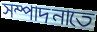
সম্পাদনাতে